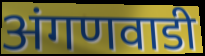
अंगणवाडी